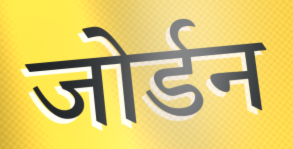
जोर्डन